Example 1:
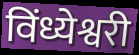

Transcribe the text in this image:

विंध्येश्वरी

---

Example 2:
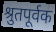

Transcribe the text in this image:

श्रुतपूर्वक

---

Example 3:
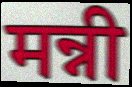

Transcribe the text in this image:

मन्नी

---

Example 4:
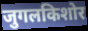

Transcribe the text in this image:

जुगलकिशोर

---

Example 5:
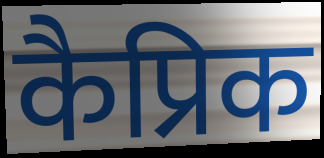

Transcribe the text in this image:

कैप्रिक